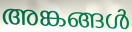
അങ്കങ്ങൾ